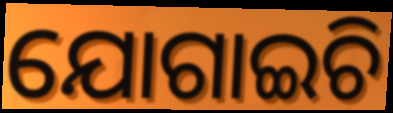
ଯୋଗାଇଚି